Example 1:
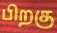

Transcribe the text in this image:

பிறகு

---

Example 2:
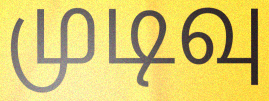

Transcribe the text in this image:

முடிவு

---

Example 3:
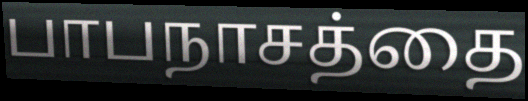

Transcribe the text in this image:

பாபநாசத்தை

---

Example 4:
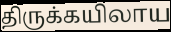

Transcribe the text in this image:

திருக்கயிலாய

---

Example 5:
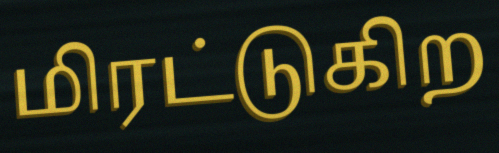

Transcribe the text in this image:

மிரட்டுகிற